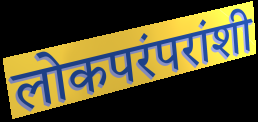
लोकपरंपरांशी